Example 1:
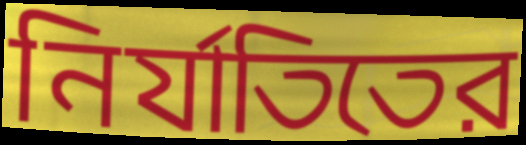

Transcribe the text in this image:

নির্যাতিতের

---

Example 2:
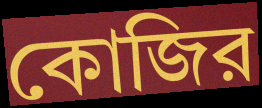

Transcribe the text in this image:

কোজির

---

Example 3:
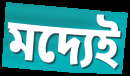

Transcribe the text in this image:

মদ্যেই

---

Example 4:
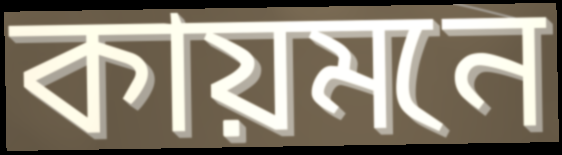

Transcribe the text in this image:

কায়মনে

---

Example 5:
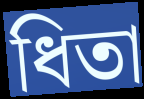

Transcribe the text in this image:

ধিতা